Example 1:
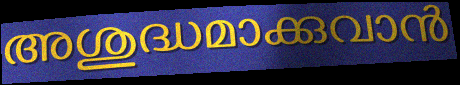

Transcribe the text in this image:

അശുദ്ധമാക്കുവാൻ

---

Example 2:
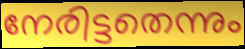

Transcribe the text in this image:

നേരിട്ടതെന്നും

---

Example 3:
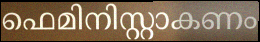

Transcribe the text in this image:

ഫെമിനിസ്റ്റാകണം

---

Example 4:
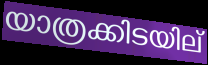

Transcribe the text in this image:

യാത്രക്കിടയില്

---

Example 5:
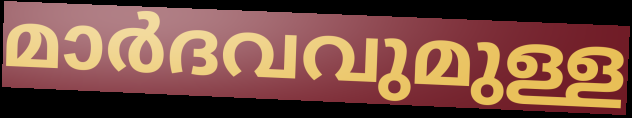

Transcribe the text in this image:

മാർദവവുമുള്ള